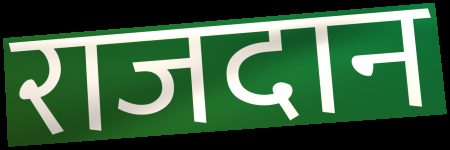
राजदान